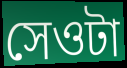
সেওটা